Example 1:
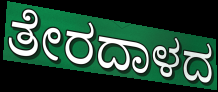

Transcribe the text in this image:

ತೇರದಾಳದ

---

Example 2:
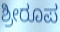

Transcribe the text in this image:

ಶ್ರೀರೂಪ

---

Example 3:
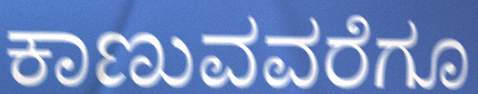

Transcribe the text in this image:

ಕಾಣುವವರೆಗೂ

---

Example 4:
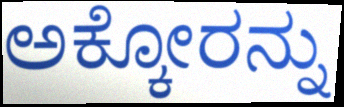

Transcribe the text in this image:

ಅಕ್ಕೋರನ್ನು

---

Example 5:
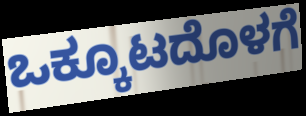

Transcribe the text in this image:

ಒಕ್ಕೂಟದೊಳಗೆ